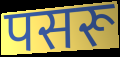
पसरू